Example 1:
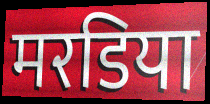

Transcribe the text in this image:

मरडिया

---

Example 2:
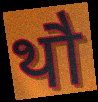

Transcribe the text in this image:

थौ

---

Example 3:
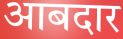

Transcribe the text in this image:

आबदार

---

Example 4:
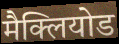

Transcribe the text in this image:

मैक्लियोड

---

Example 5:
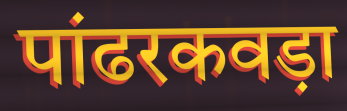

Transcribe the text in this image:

पांढरकवड़ा